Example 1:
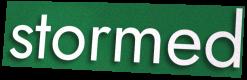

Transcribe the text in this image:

stormed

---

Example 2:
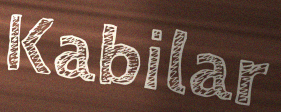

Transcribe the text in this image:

Kabilar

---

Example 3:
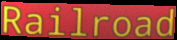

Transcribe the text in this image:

Railroad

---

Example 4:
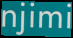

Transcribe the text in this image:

njimi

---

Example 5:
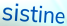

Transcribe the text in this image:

sistine